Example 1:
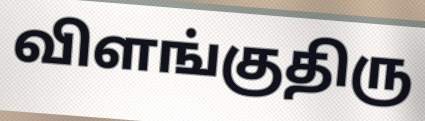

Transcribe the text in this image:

விளங்குதிரு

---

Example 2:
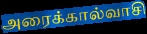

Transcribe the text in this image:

அரைக்கால்வாசி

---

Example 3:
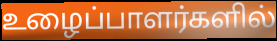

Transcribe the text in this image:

உழைப்பாளர்களில்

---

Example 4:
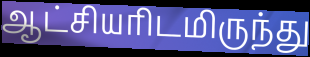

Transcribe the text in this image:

ஆட்சியரிடமிருந்து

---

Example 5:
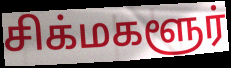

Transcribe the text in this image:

சிக்மகளூர்